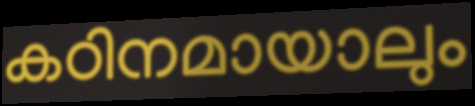
കഠിനമായാലും